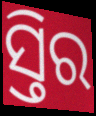
ସ୍ତିର